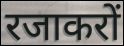
रजाकरों